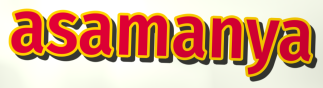
asamanya